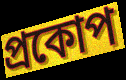
প্ৰকোপ